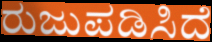
ರುಜುಪಡಿಸಿದೆ